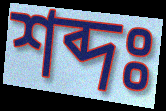
শব্দঃ